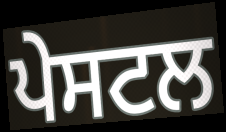
ਪੇਸਟਲ